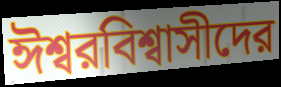
ঈশ্বরবিশ্বাসীদের